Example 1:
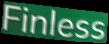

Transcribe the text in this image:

Finless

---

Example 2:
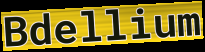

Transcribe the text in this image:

Bdellium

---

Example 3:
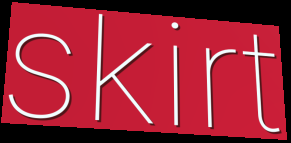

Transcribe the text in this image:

skirt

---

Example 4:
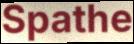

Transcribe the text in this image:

Spathe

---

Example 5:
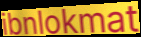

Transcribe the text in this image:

ibnlokmat